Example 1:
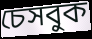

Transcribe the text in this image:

চেসবুক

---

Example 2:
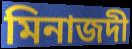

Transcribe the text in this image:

মিনাজদী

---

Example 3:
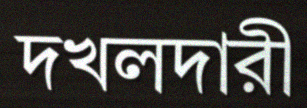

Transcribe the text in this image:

দখলদারী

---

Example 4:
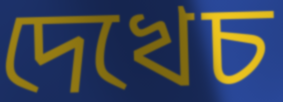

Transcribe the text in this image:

দেখেচ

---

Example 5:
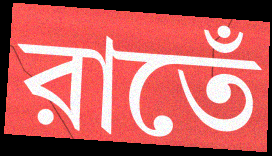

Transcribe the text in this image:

রাতেঁ